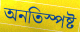
অনতিস্পষ্ট